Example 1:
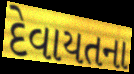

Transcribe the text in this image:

દેવાયતના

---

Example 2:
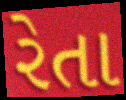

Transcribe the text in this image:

રેતા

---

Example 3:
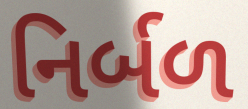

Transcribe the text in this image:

નિર્બળ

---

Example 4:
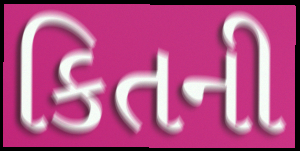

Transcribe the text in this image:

કિતની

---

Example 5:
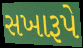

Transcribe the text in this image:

સખારૂપે